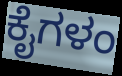
ಕೈಗಳಂ